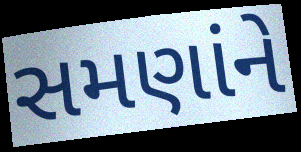
સમણાંને